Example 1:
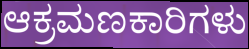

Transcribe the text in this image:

ಆಕ್ರಮಣಕಾರಿಗಳು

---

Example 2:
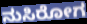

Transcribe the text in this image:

ನುಸಿರೋಗ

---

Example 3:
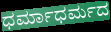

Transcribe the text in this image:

ಧರ್ಮಾಧರ್ಮದ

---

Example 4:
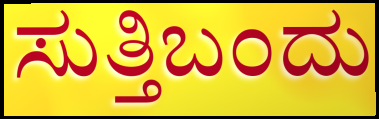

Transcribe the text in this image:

ಸುತ್ತಿಬಂದು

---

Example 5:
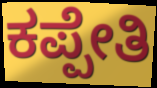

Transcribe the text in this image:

ಕಪ್ಪೇತಿ